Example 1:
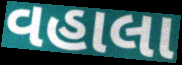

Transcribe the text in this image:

વહાલા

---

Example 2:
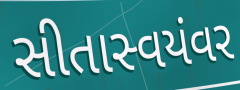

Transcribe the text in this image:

સીતાસ્વયંવર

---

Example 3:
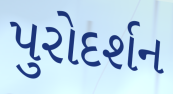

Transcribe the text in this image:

પુરોદર્શન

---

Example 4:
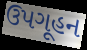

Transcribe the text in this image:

ઉપગૂહન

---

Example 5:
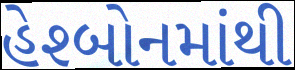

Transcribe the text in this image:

હેશ્બોનમાંથી